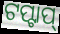
ଟପ୍ଟାପ୍